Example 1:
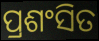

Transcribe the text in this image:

ପ୍ରଶଂସିତ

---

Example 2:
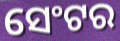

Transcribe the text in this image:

ସେଂଟର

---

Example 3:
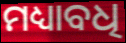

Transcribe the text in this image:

ମଧ୍ୟାବଧି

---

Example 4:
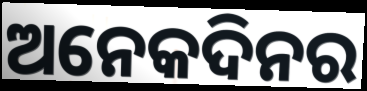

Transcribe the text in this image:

ଅନେକଦିନର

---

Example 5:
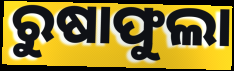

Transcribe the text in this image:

ରୁଷାଫୁଲା